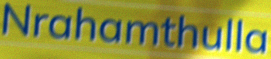
Nrahamthulla